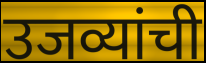
उजव्यांची